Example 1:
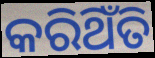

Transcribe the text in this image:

କରିଥିଁତି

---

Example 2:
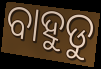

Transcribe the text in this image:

ବାହୁଡୁ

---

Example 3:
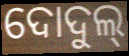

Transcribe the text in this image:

ଦୋଦୁଲ୍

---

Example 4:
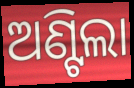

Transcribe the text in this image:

ଅଣ୍ଟିଲା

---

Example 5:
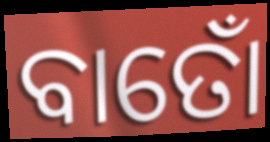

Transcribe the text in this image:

ବାତୋଁ